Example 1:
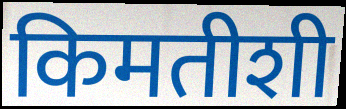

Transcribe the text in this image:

किमतीशी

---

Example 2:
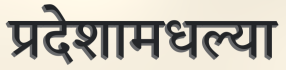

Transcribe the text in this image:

प्रदेशामधल्या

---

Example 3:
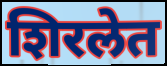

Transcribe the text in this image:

शिरलेत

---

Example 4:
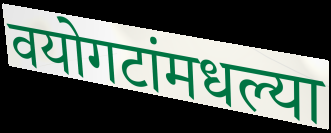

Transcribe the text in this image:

वयोगटांमधल्या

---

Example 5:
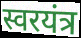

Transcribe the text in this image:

स्वरयंत्र